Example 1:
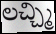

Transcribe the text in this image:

లచ్చ్మి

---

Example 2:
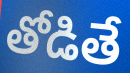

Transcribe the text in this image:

తోడితే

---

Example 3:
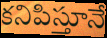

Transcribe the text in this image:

కనిపిస్తూనే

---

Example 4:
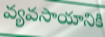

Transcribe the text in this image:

వ్యవసాయానికి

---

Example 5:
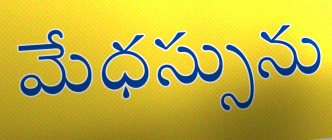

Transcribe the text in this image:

మేధస్సును